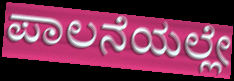
ಪಾಲನೆಯಲ್ಲೇ